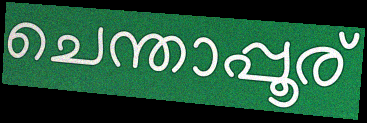
ചെന്താപ്പൂര്